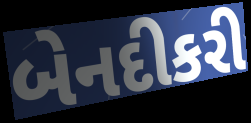
બેનદીકરી